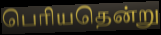
பெரியதென்று